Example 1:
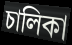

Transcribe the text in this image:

চালিকা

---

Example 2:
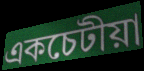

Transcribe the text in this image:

একচেটীয়া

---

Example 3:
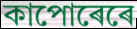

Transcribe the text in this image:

কাপোৰেৰে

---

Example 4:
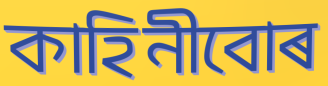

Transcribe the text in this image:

কাহিনীবোৰ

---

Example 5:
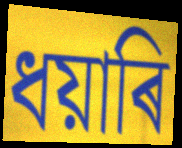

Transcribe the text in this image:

ধয়াৰি